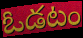
ఓడటం